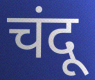
चंदू